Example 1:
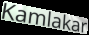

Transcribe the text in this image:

Kamlakar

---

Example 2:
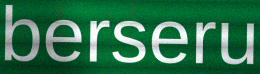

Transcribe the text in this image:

berseru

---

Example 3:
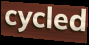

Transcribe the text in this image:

cycled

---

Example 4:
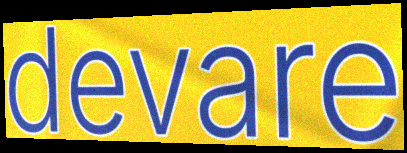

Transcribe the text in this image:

devare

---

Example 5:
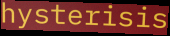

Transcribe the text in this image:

hysterisis